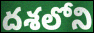
దశలోని